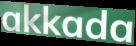
akkada